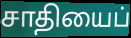
சாதியைப்